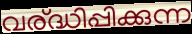
വര്ദ്ധിപ്പിക്കുന്ന